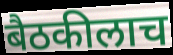
बैठकीलाच